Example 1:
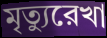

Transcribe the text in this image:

মৃত্যুরেখা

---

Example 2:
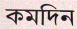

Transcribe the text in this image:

কমদিন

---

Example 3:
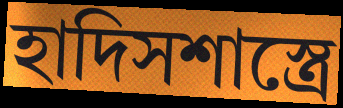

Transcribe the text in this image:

হাদিসশাস্ত্রে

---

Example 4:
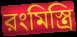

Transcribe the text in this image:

রংমিস্ত্রি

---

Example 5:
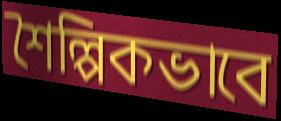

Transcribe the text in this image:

শৈল্পিকভাবে